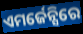
ଏମର୍ଜେନ୍ସିରେ